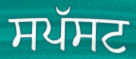
ਸਪੱਸਟ